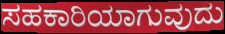
ಸಹಕಾರಿಯಾಗುವುದು